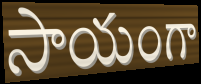
సాయంగా